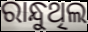
ରାନ୍ଧୁଥିଲ